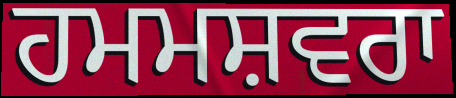
ਹਮਮਸ਼ਵਰਾ